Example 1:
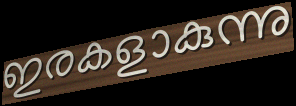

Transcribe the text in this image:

ഇരകളാകുന്നു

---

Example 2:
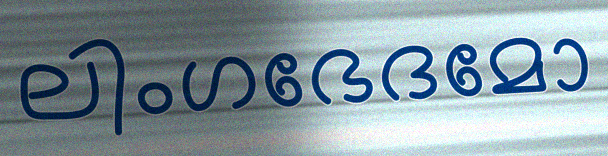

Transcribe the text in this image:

ലിംഗഭേദമോ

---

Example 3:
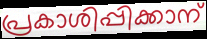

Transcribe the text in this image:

പ്രകാശിപ്പിക്കാന്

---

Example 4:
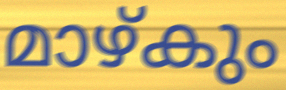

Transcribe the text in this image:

മാഴ്കും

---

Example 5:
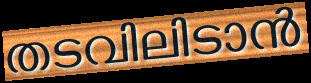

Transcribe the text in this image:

തടവിലിടാൻ